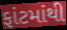
ફાંટમાંથી